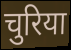
चुरिया